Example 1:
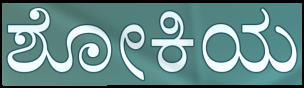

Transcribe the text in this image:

ಶೋಕಿಯ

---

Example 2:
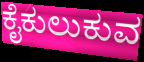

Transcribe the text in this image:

ಕೈಕುಲುಕುವ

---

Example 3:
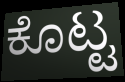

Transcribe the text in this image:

ಕೊಟ್ಟ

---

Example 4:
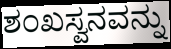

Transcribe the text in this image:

ಶಂಖಸ್ವನವನ್ನು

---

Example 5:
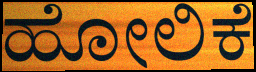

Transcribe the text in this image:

ಹೋಲಿಕೆ